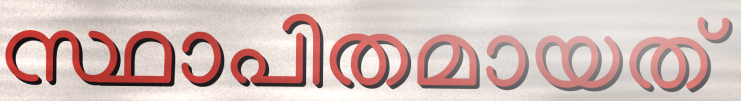
സ്ഥാപിതമായത്